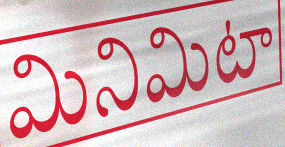
మినిమిటా